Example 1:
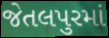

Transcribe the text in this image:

જેતલપુરમાં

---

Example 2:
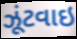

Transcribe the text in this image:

ઝૂંટવાઇ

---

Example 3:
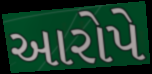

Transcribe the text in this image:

આરોપે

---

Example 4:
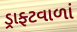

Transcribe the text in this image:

ડ્રાફ્ટવાળાં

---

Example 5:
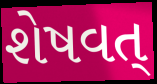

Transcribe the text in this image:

શેષવત્